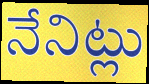
నేనిట్లు